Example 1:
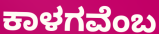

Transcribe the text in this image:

ಕಾಳಗವೆಂಬ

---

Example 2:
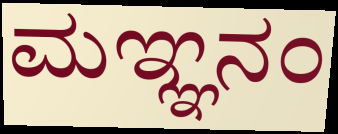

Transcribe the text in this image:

ಮಞ್ಞನಂ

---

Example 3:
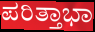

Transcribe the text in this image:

ಪರಿತ್ತಾಭಾ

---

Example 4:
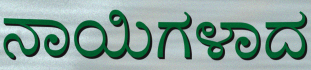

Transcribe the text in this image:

ನಾಯಿಗಳಾದ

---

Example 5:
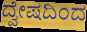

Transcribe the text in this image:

ದ್ವೇಷದಿಂದ